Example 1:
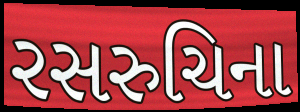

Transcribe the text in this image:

રસરુચિના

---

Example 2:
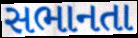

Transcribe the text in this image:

સભાનતા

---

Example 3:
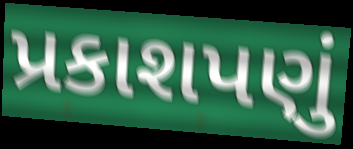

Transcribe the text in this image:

પ્રકાશપણું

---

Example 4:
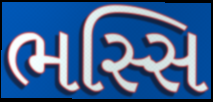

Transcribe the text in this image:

ભસ્સિ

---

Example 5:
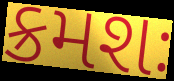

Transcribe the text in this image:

ક્રમશઃ